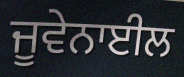
ਜੂਵੇਨਾਈਲ